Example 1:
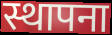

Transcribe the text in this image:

स्थापना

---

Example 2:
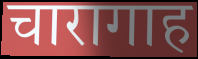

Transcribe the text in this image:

चारागाह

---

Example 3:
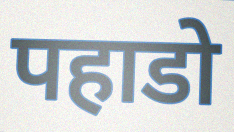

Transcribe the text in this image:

पहाडो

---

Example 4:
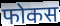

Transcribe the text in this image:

फोकस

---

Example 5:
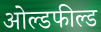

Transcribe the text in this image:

ओल्डफील्ड